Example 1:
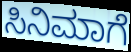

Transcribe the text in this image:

ಸಿನಿಮಾಗೆ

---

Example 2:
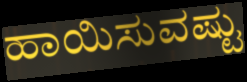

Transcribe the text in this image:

ಹಾಯಿಸುವಷ್ಟು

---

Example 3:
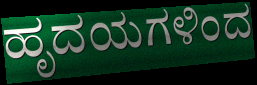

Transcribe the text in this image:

ಹೃದಯಗಳಿಂದ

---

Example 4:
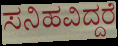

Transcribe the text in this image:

ಸನಿಹವಿದ್ದರೆ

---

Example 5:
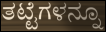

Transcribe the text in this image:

ತಟ್ಟೆಗಳನ್ನೂ